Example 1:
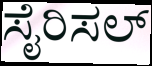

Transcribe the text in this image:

ಸೈರಿಸಲ್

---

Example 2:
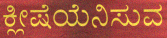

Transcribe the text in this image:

ಕ್ಲೀಷೆಯೆನಿಸುವ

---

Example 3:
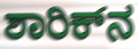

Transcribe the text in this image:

ಶಾರಿಕ್‌ನ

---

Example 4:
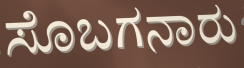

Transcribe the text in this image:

ಸೊಬಗನಾರು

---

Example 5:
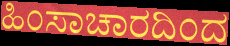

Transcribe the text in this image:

ಹಿಂಸಾಚಾರದಿಂದ